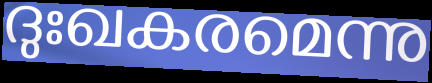
ദുഃഖകരമെന്നു